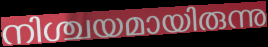
നിശ്ചയമായിരുന്നു